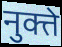
नुक्ते